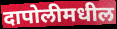
दापोलीमधील